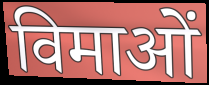
विमाओं